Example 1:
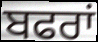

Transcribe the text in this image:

ਬਫਰਾਂ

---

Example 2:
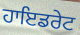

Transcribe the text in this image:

ਹਾਇਡਰੇਟ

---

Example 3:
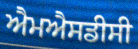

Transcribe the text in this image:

ਐਮਐਸਡੀਸੀ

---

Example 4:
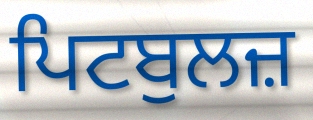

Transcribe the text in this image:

ਪਿਟਬੁਲਜ਼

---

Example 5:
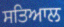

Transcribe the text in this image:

ਸਤਿਆਲ